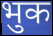
भुक